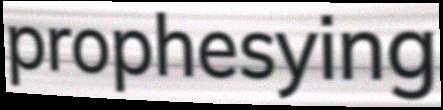
prophesying